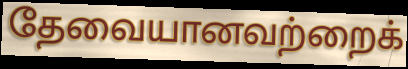
தேவையானவற்றைக்